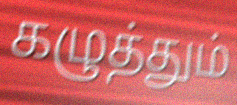
கழுத்தும்